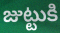
జుట్టుకి